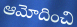
ఆమోదించి